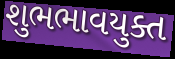
શુભભાવયુક્ત